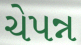
ચેપન્ન